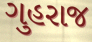
ગુહરાજ